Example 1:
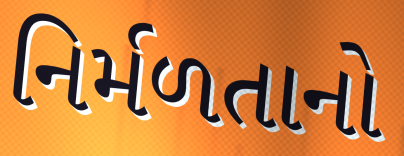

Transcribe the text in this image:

નિર્મળતાનો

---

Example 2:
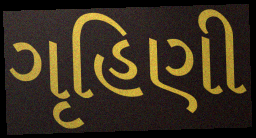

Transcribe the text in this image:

ગૃહિણી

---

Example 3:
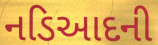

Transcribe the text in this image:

નડિઆદની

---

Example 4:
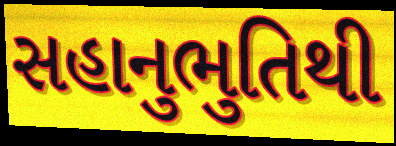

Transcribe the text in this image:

સહાનુભુતિથી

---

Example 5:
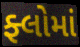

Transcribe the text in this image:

ફ્લોમાં